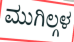
ಮುಗಿಲ್ಗಳ